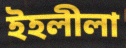
ইহলীলা